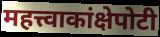
महत्त्वाकांक्षेपोटी